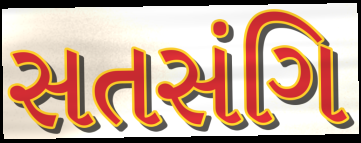
સતસંગિ